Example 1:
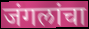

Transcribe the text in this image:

जंगलांचा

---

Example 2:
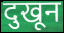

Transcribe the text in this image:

दुखून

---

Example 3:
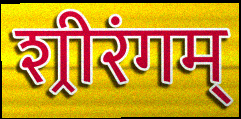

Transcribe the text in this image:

श्रीरंगम्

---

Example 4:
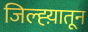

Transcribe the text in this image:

जिल्ह्य़ातून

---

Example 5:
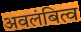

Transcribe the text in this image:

अवलंबित्व